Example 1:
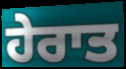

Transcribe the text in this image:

ਹੇਰਾਤ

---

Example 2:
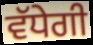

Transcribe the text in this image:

ਵੱਧੇਗੀ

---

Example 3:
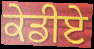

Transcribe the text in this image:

ਕੇਡੀਏ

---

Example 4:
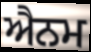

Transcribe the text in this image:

ਐਨਮ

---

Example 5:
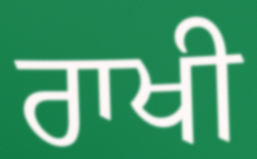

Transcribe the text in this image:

ਰਾਖੀ